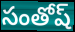
సంతోష్